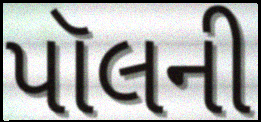
પૉલની